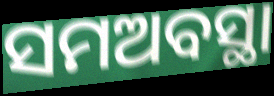
ସମଅବସ୍ଥା